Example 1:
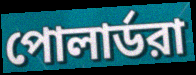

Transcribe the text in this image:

পোলার্ডরা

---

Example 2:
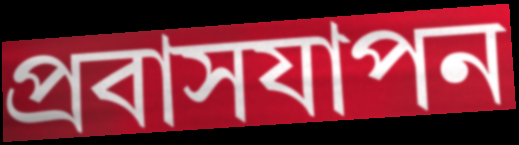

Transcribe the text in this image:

প্রবাসযাপন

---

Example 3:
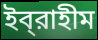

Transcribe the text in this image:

ইব্‌রাহীম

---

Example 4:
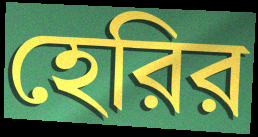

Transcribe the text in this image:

হেরির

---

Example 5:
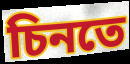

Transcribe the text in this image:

চিনতে